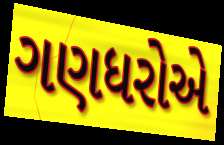
ગણધરોએ